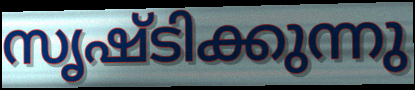
സൃഷ്ടിക്കുന്നു